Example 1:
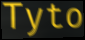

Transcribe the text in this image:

Tyto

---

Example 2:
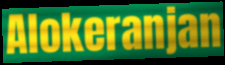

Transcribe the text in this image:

Alokeranjan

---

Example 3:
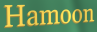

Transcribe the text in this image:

Hamoon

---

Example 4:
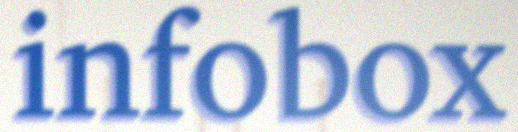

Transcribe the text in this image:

infobox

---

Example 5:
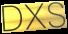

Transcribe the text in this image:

DXS